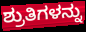
ಶ್ರುತಿಗಳನ್ನು